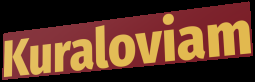
Kuraloviam